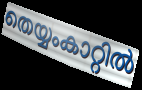
തെയ്യംകാറ്റിൽ